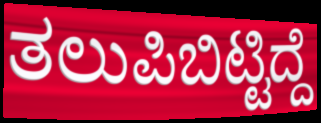
ತಲುಪಿಬಿಟ್ಟಿದ್ದೆ